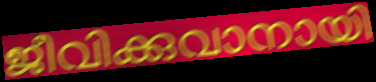
ജീവിക്കുവാനായി